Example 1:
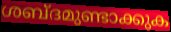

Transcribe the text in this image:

ശബ്ദമുണ്ടാക്കുക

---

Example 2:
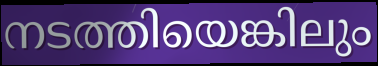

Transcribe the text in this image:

നടത്തിയെങ്കിലും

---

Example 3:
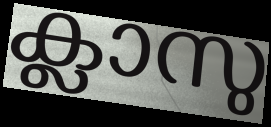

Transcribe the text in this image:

ക്ലാസു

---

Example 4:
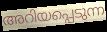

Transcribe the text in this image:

അറിയപ്പെടുന്ന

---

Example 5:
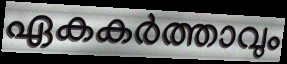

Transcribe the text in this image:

ഏകകർത്താവും